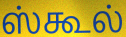
ஸ்கூல்